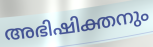
അഭിഷിക്തനും